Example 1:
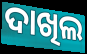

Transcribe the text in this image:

ଦାଖିଲ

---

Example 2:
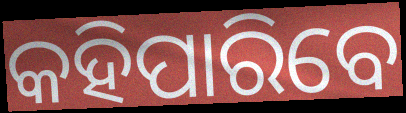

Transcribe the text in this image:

କହିପାରିବେ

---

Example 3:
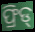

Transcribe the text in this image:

ଫ୍ରିଡ୍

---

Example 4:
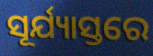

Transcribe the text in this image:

ସୂର୍ଯ୍ୟାସ୍ତରେ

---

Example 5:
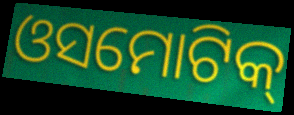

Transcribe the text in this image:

ଓସମୋଟିକ୍